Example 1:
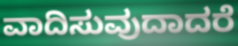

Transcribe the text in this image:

ವಾದಿಸುವುದಾದರೆ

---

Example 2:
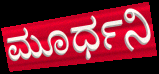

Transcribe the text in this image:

ಮೂರ್ಧನಿ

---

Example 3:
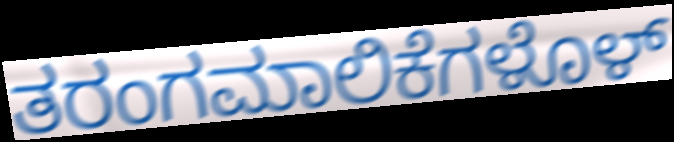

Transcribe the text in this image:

ತರಂಗಮಾಲಿಕೆಗಳೊಳ್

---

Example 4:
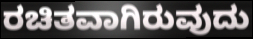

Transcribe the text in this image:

ರಚಿತವಾಗಿರುವುದು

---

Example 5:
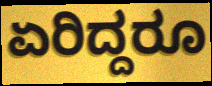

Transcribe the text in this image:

ಏರಿದ್ದರೂ